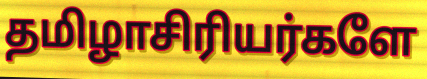
தமிழாசிரியர்களே